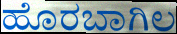
ಹೊರಬಾಗಿಲ